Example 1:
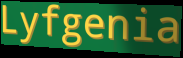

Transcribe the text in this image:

Lyfgenia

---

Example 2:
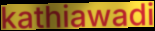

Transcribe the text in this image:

kathiawadi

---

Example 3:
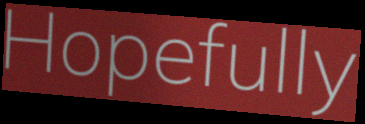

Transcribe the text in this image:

Hopefully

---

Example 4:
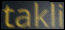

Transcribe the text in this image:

takli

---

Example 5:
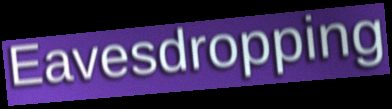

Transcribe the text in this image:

Eavesdropping